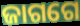
ଜାଗଗେ